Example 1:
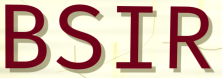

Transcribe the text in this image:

BSIR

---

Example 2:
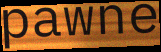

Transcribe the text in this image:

pawne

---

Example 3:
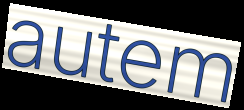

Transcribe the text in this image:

autem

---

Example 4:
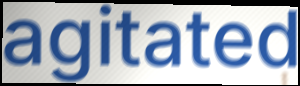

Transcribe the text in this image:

agitated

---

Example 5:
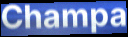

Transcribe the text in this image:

Champa